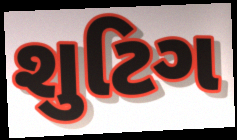
શુટિગ